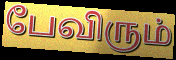
பேவிரும்